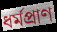
ধৰ্মপ্ৰাণ